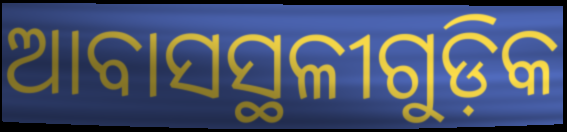
ଆବାସସ୍ଥଳୀଗୁଡ଼ିକ